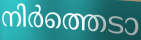
നിർത്തെടാ